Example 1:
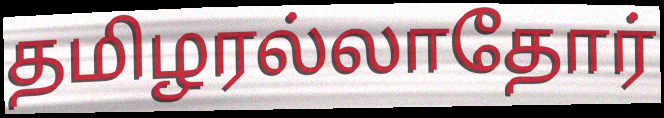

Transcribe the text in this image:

தமிழரல்லாதோர்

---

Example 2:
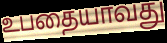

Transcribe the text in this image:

உபதையாவது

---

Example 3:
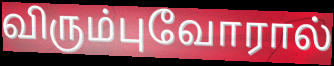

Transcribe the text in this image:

விரும்புவோரால்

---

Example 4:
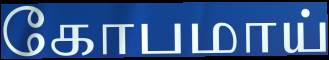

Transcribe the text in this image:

கோபமாய்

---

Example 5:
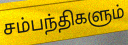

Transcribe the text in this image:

சம்பந்திகளும்